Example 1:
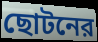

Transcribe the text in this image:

ছোটনের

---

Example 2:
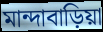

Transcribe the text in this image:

মান্দাবাড়িয়া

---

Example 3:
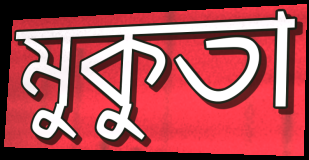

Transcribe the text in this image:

মুকুতা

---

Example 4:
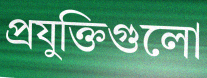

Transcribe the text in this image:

প্রযুক্তিগুলো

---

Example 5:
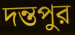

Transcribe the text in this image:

দন্তপুর